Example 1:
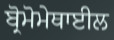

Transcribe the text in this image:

ਬ੍ਰੋਮੋਮੇਥਾਈਲ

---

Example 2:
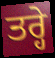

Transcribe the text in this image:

ਤਰ੍ਹੇ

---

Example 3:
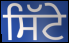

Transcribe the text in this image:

ਸਿੱਟੇ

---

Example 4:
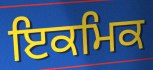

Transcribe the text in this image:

ਇਕਮਿਕ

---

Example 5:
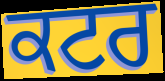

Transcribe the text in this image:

ਕਟਰ